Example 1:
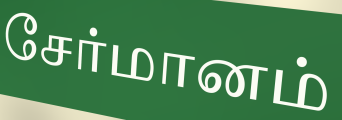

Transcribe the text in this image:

சேர்மானம்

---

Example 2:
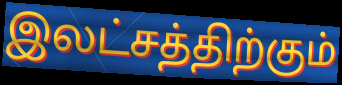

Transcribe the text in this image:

இலட்சத்திற்கும்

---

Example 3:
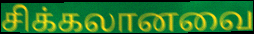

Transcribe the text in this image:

சிக்கலானவை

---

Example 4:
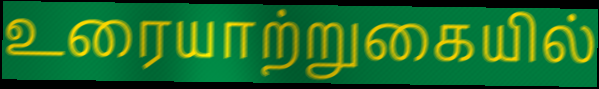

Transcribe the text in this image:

உரையாற்றுகையில்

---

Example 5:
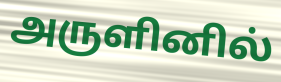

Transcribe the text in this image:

அருளினில்